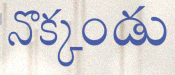
నొక్కండు